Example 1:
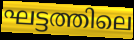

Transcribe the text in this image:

ഘട്ടത്തിലെ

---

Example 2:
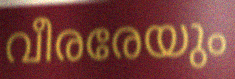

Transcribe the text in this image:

വീരരേയും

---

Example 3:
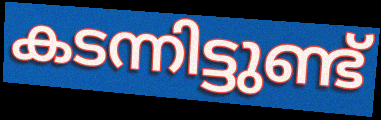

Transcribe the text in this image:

കടന്നിട്ടുണ്ട്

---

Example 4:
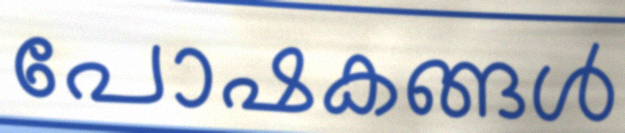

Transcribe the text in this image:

പോഷകങ്ങൾ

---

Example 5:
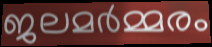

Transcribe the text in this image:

ജലമർമ്മരം